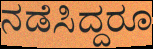
ನಡೆಸಿದ್ದರೂ